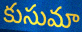
కుసుమా